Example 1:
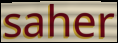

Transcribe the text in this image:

saher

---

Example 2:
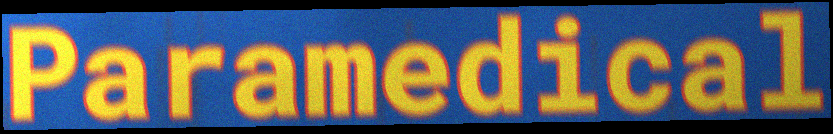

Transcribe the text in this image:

Paramedical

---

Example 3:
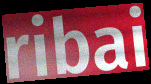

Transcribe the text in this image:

ribai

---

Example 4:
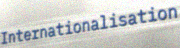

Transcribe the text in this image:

Internationalisation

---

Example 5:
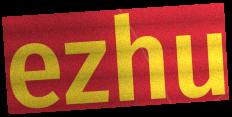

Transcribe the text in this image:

ezhu